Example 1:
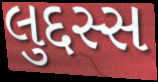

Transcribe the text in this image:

લુદ્દસ્સ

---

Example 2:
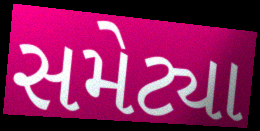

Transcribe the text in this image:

સમેટ્યા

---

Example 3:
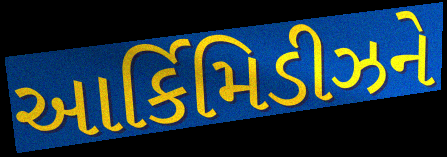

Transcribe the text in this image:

આર્કિમિડીઝને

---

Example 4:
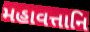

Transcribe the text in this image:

મહાવત્તાનિ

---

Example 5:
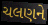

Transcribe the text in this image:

ચલણને